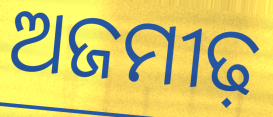
ଅଜମୀଢ଼